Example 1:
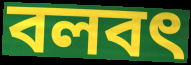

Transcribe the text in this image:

বলবৎ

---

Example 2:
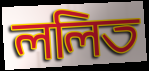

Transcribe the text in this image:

ললিত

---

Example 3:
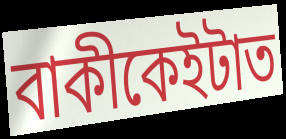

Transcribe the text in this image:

বাকীকেইটাত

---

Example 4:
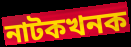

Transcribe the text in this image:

নাটকখনক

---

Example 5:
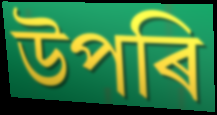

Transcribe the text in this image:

উপৰি